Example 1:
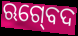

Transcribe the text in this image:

ଋଗ୍‍ବେଦ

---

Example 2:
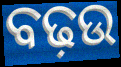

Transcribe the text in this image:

ବଢ଼ଉ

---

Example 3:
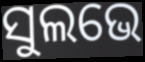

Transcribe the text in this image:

ସୁଲଭେ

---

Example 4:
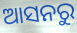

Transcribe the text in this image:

ଆସନରୁ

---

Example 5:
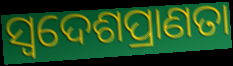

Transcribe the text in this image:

ସ୍ଵଦେଶପ୍ରାଣତା